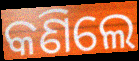
କଣିଲେ